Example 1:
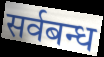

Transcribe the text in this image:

सर्वबन्ध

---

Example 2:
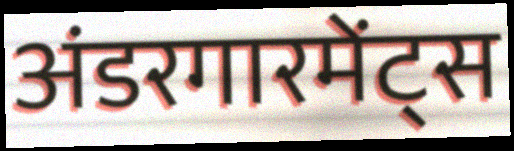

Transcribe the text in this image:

अंडरगारमेंट्स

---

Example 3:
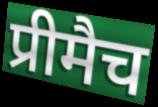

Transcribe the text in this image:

प्रीमैच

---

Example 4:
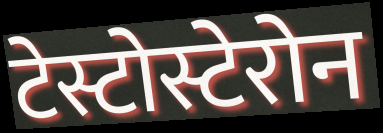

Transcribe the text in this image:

टेस्टोस्टेरोन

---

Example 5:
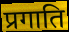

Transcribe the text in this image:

प्रगाति